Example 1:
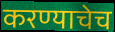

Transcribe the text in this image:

करण्याचेच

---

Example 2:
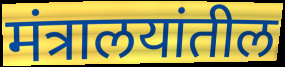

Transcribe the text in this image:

मंत्रालयांतील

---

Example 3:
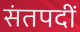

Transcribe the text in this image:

संतपदीं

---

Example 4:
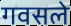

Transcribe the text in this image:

गवसले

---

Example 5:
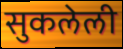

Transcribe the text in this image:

सुकलेली